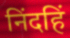
निंदहिं